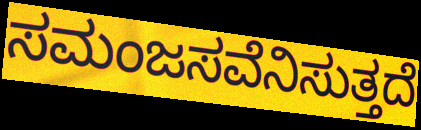
ಸಮಂಜಸವೆನಿಸುತ್ತದೆ